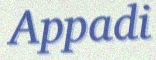
Appadi